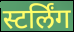
स्टर्लिंग